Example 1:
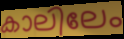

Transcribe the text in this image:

കാലിലേം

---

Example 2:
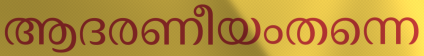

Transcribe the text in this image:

ആദരണീയംതന്നെ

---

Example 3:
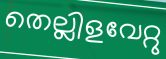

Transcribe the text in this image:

തെല്ലിളവേറ്റു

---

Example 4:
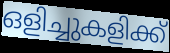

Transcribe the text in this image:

ഒളിച്ചുകളിക്ക്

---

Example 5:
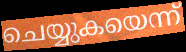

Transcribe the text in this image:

ചെയ്യുകയെന്ന്